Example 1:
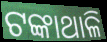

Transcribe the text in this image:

ଟଙ୍କାଥାଳି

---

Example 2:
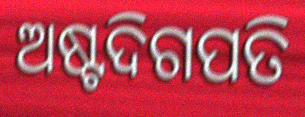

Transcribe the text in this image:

ଅଷ୍ଟଦିଗପତି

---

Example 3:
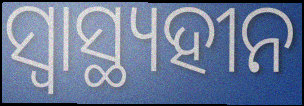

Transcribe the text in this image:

ସ୍ୱାସ୍ଥ୍ୟହୀନ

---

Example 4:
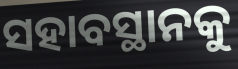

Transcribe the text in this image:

ସହାବସ୍ଥାନକୁ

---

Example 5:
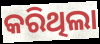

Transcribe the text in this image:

କରିଥିଲା